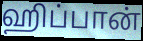
ஹிப்பான்